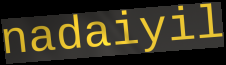
nadaiyil